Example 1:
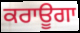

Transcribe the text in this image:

ਕਰਾਊਗਾ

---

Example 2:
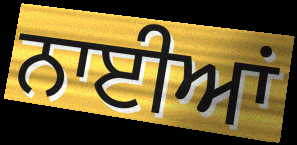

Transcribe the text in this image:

ਨਾਈਆਂ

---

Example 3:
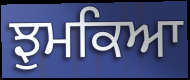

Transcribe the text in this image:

ਝੁਮਕਿਆ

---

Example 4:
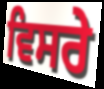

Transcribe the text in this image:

ਵਿਸਰੇ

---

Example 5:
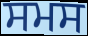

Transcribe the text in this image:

ਸਮਸ